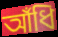
আঁধি